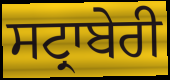
ਸਟ੍ਰਾਬੇਰੀ